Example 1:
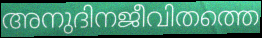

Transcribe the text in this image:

അനുദിനജീവിതത്തെ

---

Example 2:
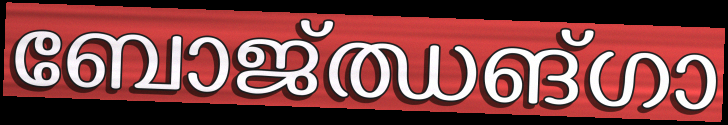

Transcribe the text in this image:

ബോജ്ഝങ്ഗാ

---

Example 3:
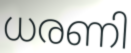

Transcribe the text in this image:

ധരണി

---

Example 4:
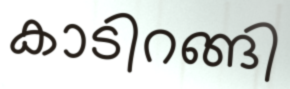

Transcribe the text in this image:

കാടിറങ്ങി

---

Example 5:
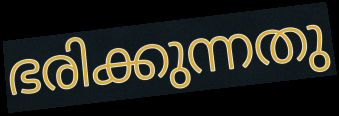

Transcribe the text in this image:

ഭരിക്കുന്നതു